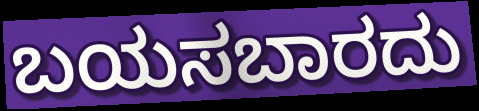
ಬಯಸಬಾರದು